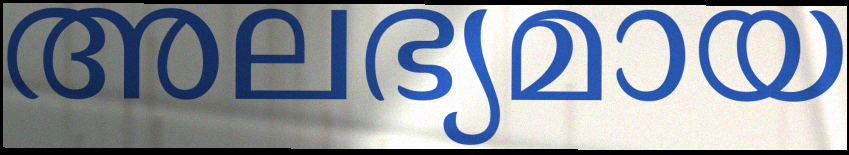
അലഭ്യമായ